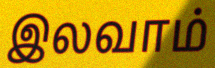
இலவாம்